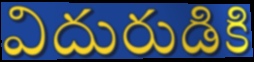
విదురుడికి